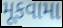
મૂકવામા